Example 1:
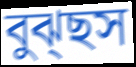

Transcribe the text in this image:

বুঝ্ছস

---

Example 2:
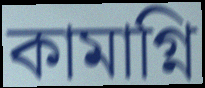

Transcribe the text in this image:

কামাগ্নি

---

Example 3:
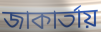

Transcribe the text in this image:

জাকার্তায়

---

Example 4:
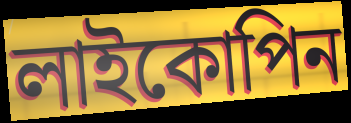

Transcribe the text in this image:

লাইকোপিন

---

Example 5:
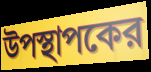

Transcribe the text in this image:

উপস্থাপকের